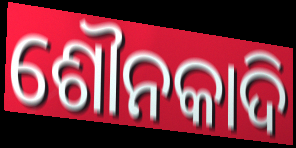
ଶୌନକାଦି